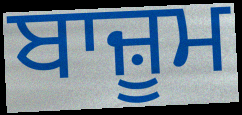
ਬਾਜ਼ੂਮ